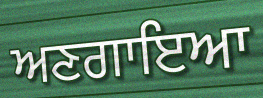
ਅਣਗਾਇਆ